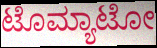
ಟೊಮ್ಯಾಟೋ